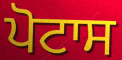
ਪੋਟਾਸ